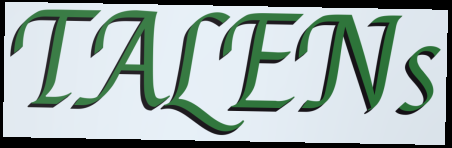
TALENs